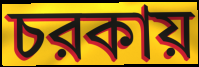
চরকায়